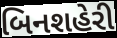
બિનશહેરી